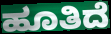
ಹೂತಿದೆ